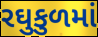
રઘુકુળમાં